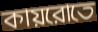
কায়রোতে